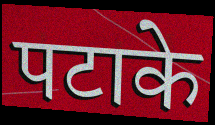
पटाके